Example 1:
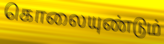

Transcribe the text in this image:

கொலையுண்டும்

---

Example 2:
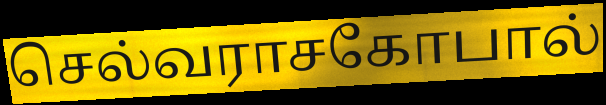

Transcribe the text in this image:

செல்வராசகோபால்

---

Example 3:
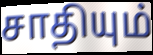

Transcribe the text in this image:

சாதியும்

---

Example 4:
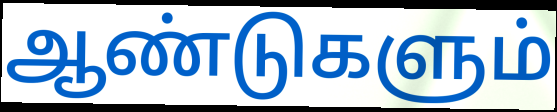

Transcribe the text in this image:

ஆண்டுகளும்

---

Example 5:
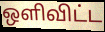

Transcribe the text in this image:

ஒளிவிட்ட